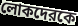
লোকদেরকে